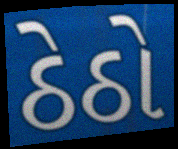
ઠેઠો